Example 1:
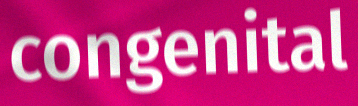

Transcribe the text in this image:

congenital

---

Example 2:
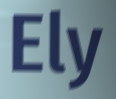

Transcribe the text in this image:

Ely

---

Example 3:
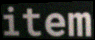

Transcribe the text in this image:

item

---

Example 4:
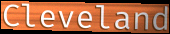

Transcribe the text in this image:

Cleveland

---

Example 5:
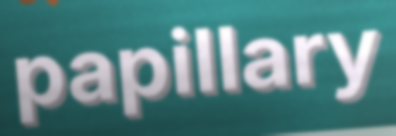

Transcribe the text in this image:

papillary